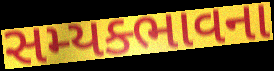
સમ્યક્ભાવના